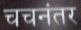
चचनंतर